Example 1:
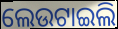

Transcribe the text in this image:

ଲେଉଟାଇଲି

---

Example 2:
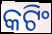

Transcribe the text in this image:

କଟିଂ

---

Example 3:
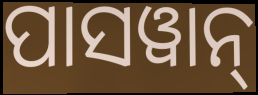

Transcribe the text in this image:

ପାସୱାନ୍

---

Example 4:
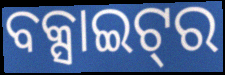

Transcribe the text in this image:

ବକ୍ସାଇଟ୍‌ର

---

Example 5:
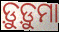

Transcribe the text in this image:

ଡ଼ୁଡ଼ୁମା